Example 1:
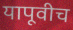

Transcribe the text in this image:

यापूवीच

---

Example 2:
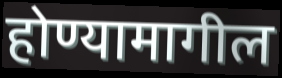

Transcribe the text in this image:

होण्यामागील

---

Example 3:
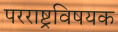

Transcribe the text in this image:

परराष्ट्रविषयक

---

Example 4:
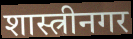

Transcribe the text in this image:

शास्त्रीनगर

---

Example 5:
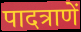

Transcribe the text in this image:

पादत्राणें